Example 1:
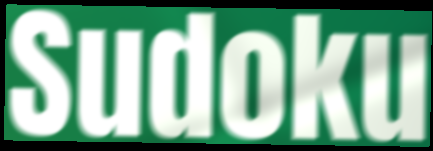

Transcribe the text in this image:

Sudoku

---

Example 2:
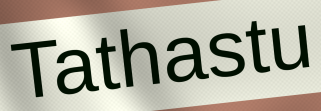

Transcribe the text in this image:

Tathastu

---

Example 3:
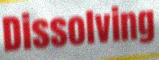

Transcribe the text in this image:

Dissolving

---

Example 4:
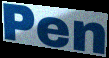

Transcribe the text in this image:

Pen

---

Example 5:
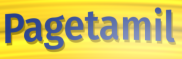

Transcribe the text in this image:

Pagetamil